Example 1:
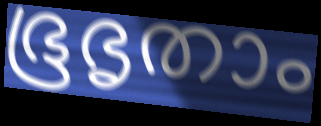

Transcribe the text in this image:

ഭൂഭൃതാം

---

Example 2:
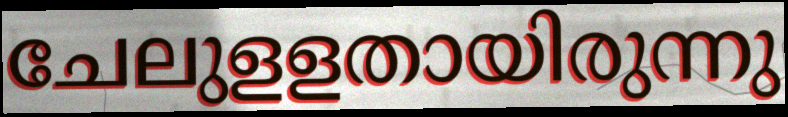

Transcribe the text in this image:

ചേലുളളതായിരുന്നു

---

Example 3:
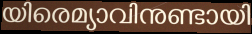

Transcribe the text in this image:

യിരെമ്യാവിനുണ്ടായി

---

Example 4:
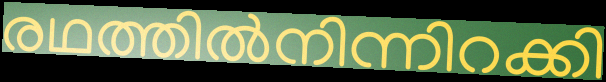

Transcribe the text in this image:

രഥത്തിൽനിന്നിറക്കി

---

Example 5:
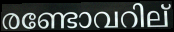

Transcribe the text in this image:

രണ്ടോവറില്